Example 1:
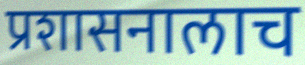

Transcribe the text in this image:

प्रशासनालाच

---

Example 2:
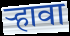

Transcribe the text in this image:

र्‍हावा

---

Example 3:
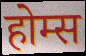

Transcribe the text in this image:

होम्स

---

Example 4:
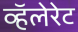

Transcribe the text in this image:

व्हॅलेरेट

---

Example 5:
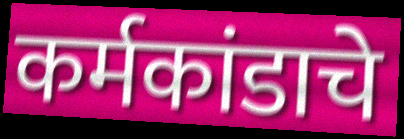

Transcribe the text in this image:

कर्मकांडाचे